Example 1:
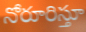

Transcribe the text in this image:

నోరూరిస్తూ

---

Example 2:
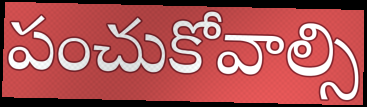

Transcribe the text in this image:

పంచుకోవాల్సి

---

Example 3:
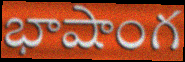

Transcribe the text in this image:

భాషాంగ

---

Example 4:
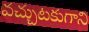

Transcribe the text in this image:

వచ్చుటకుగాని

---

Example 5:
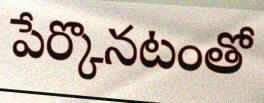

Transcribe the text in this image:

పేర్కొనటంతో